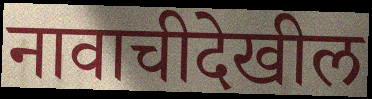
नावाचीदेखील